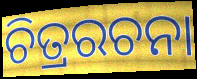
ଚିତ୍ରରଚନା